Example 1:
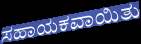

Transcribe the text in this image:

ಸಹಾಯಕವಾಯಿತು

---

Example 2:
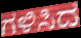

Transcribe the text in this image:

ಗಳಿಸಿದ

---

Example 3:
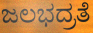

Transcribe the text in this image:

ಜಲಭದ್ರತೆ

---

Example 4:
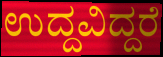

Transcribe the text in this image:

ಉದ್ದವಿದ್ದರೆ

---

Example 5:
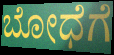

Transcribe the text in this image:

ಬೋಧೆಗೆ